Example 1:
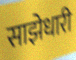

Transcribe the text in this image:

साझेधारी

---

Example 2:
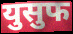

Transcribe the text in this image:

युसुफ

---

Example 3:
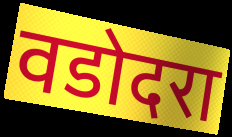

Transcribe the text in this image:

वडोदरा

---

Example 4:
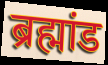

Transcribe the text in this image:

ब्रह्मांड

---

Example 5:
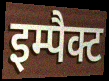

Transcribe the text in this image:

इम्पैक्ट